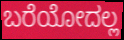
ಬರೆಯೋದಲ್ಲ